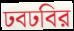
ঢবঢবির